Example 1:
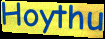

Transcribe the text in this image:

Hoythu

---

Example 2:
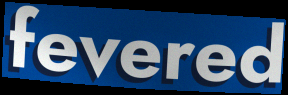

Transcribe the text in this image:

fevered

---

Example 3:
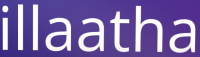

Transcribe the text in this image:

illaatha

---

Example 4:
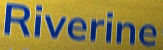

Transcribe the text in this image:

Riverine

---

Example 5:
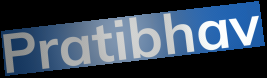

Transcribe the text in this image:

Pratibhav